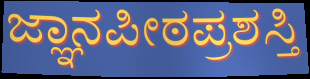
ಜ್ಞಾನಪೀಠಪ್ರಶಸ್ತಿ